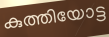
കുത്തിയോട്ട